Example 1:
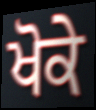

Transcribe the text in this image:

ਖੋਕੇ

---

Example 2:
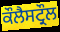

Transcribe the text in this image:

ਕੌਲੈਸਟ੍ਰੌਲ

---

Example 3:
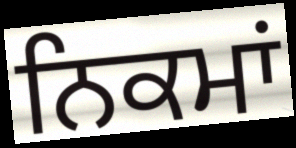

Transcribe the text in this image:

ਨਿਕਮਾਂ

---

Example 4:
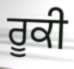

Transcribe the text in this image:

ਰੂਕੀ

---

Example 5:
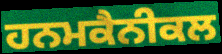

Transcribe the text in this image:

ਹਨਮਕੈਨੀਕਲ